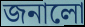
জনালো